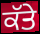
ਕੱਤੇ